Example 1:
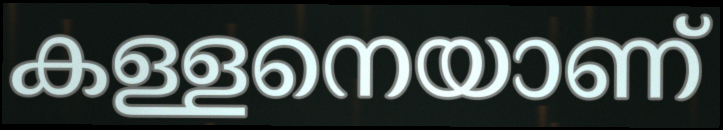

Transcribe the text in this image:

കള്ളനെയാണ്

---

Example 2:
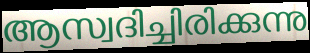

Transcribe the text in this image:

ആസ്വദിച്ചിരിക്കുന്നു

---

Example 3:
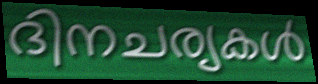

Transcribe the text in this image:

ദിനചര്യകൾ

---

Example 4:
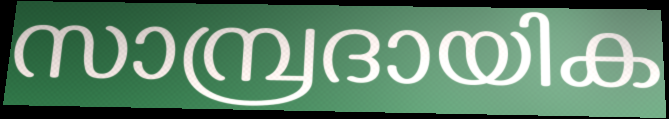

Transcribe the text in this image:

സാമ്പ്രദായിക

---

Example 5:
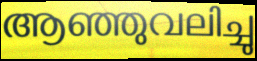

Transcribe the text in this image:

ആഞ്ഞുവലിച്ചു